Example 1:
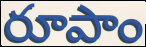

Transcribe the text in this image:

రూపాం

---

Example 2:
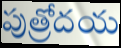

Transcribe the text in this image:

పుత్రోదయ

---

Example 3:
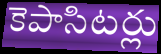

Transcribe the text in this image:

కెపాసిటర్లు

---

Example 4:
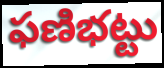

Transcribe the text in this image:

ఫణిభట్టు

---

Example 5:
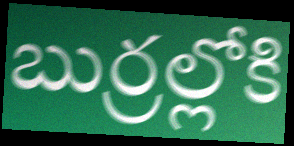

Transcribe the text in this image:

బుర్రల్లోకి